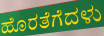
ಹೊರತೆಗೆದಳು